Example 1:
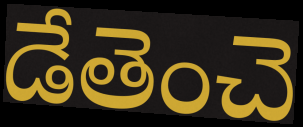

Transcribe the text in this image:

డేతెంచె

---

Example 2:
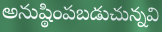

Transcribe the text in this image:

అనుష్ఠింపబడుచున్నవి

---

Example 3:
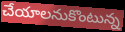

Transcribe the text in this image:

చేయాలనుకొంటున్న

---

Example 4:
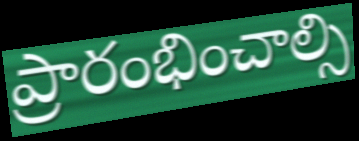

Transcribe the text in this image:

ప్రారంభించాల్సి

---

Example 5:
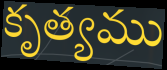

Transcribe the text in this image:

కృత్యము